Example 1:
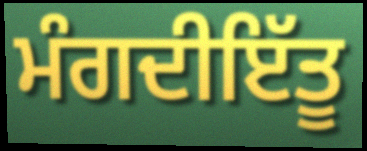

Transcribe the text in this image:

ਮੰਗਦੀਇੱਤੂ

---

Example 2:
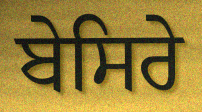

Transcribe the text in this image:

ਬੇਸਿਰੇ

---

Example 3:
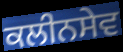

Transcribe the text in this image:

ਕਲੀਨਸੇਵ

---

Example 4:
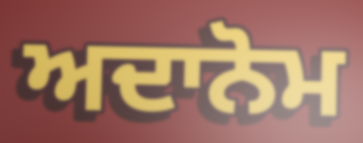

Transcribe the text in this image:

ਅਦਾਨੋਮ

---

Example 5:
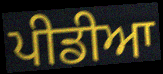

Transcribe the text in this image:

ਪੀਡੀਆ